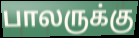
பாலருக்கு